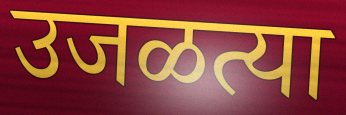
उजळत्या